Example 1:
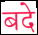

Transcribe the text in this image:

बदे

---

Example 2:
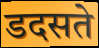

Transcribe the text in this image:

डदसते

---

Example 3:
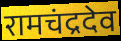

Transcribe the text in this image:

रामचंद्रदेव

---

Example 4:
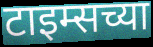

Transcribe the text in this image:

टाइम्सच्या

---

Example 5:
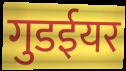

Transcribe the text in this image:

गुडईयर